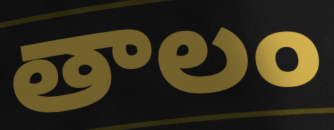
తాలం